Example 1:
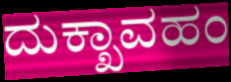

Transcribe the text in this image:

ದುಕ್ಖಾವಹಂ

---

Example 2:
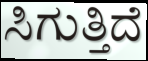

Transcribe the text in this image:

ಸಿಗುತ್ತಿದೆ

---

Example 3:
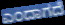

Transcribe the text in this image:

ಎಂದಾಗದೆ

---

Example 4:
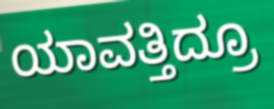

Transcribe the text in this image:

ಯಾವತ್ತಿದ್ರೂ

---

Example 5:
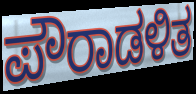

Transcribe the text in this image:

ಪೌರಾಡಳಿತ